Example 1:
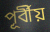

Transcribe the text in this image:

পূর্বীয়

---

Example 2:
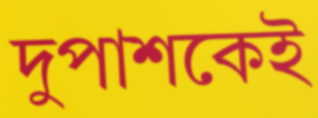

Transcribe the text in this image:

দুপাশকেই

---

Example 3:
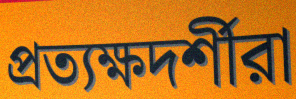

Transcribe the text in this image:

প্রত্যক্ষদর্শীরা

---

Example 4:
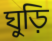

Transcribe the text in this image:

ঘুড়ি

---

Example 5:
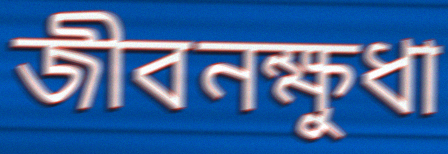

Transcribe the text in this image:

জীবনক্ষুধা